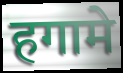
हगामे